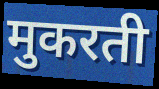
मुकरती